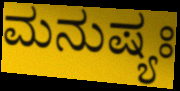
ಮನುಷ್ಯಃ